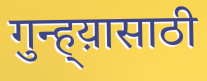
गुन्ह्य़ासाठी